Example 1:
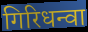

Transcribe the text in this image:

गिरिधन्वा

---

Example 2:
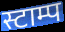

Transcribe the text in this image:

स्टाम्प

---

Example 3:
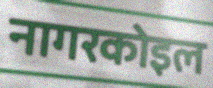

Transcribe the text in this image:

नागरकोइल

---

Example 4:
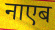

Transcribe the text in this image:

नाएब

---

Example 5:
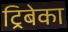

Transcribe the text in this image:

ट्रिबेका